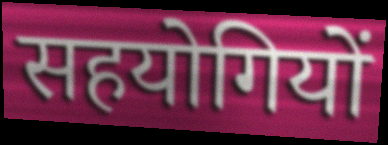
सहयोगियों